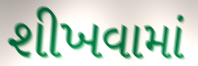
શીખવામાં